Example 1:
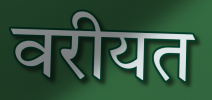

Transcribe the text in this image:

वरीयत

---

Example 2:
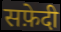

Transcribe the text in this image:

सफ़ेदी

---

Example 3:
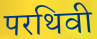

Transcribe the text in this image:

परथिवी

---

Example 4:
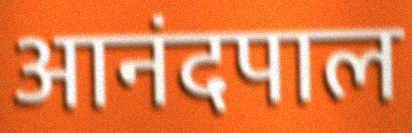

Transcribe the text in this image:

आनंदपाल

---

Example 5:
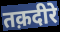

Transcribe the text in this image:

तक़दीरे